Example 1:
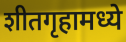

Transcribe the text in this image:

शीतगृहामध्ये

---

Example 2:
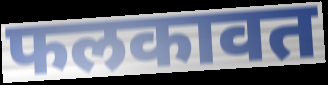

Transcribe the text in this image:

फलकावत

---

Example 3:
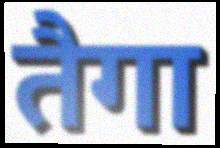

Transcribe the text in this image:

तैगा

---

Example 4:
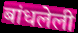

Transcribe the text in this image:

बांधलेली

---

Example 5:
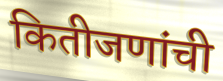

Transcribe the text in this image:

कितीजणांची